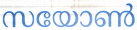
സയോൺ